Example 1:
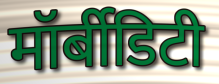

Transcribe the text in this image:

मॉर्बीडिटी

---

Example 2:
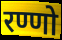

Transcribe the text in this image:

रण्णो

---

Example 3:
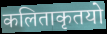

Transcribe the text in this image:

कलिताकृतयो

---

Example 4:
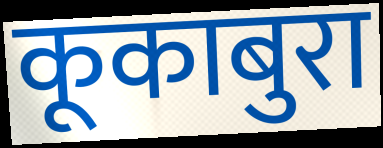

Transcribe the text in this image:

कूकाबुरा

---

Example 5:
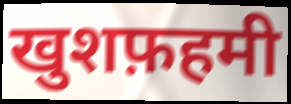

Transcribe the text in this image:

खुशफ़हमी